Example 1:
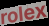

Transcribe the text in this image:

rolex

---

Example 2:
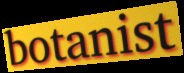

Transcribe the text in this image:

botanist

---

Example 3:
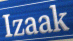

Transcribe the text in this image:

Izaak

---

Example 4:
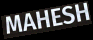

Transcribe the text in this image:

MAHESH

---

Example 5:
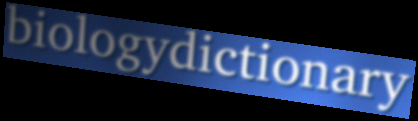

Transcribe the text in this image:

biologydictionary